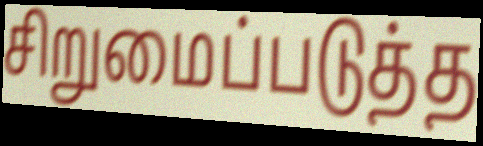
சிறுமைப்படுத்த